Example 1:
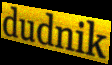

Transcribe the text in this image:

dudnik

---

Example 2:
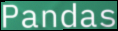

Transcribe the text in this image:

Pandas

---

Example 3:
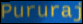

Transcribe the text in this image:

Pururaj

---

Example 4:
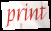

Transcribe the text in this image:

print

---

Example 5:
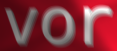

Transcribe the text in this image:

vor